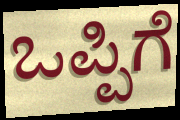
ಒಪ್ಪಿಗೆ